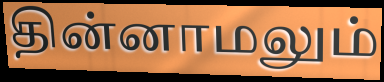
தின்னாமலும்